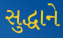
સુદ્ધાને